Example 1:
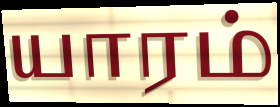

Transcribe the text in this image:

யாரம்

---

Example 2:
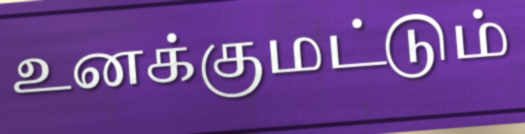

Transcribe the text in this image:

உனக்குமட்டும்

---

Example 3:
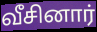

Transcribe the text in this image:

வீசினார்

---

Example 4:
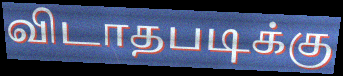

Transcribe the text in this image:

விடாதபடிக்கு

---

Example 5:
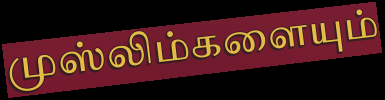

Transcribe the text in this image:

முஸ்லிம்களையும்